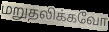
மறுதலிக்கவோ